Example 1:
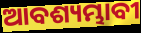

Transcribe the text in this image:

ଆବଶ୍ୟମ୍ଭାବୀ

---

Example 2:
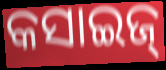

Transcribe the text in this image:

କସାଇଜ୍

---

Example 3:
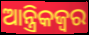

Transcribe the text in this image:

ଆନ୍ତ୍ରିକଜ୍ଵର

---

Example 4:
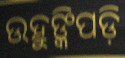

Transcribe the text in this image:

ଉହୁଙ୍କିପଡ଼ି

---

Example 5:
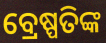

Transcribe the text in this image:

ବ୍ରେଷ୍ପତିଙ୍କ